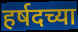
हर्षदच्या